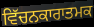
ਵਿੱਚਨਕਾਰਾਤਮਕ